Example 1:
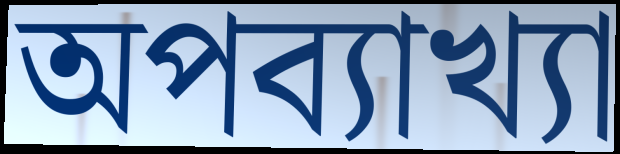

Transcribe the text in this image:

অপব্যাখ্যা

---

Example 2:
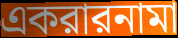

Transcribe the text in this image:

একরারনামা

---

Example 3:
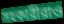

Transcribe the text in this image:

সহকারীরাও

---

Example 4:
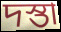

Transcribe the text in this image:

দস্তা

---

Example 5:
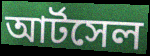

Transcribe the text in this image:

আর্টসেল